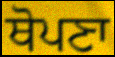
ਥੋਪਣਾ